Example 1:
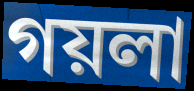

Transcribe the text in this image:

গয়লা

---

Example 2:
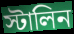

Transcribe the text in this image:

স্টালিন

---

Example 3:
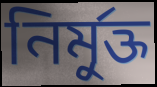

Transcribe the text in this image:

নির্মুক্ত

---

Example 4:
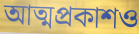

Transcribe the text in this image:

আত্মপ্রকাশও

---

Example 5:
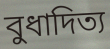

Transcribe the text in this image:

বুধাদিত্য